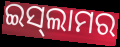
ଇସ୍‍ଲାମର